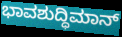
ಭಾವಶುದ್ಧಿಮಾನ್